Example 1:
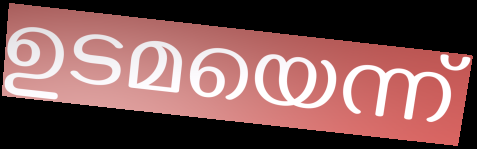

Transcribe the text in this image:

ഉടമയെന്ന്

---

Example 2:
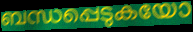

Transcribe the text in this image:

ബന്ധപ്പെടുകയോ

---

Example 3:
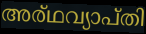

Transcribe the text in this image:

അര്ഥവ്യാപ്തി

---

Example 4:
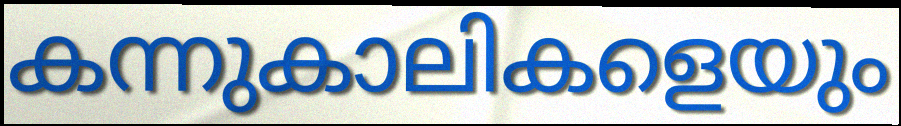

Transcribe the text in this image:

കന്നുകാലികളെയും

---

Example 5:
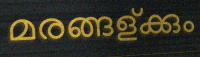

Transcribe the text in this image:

മരങ്ങള്ക്കും